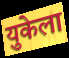
युकेला